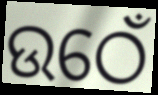
ଉଠେଁ